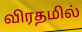
விரதமில்